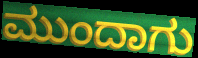
ಮುಂದಾಗು